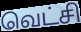
வெட்சி